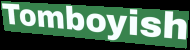
Tomboyish